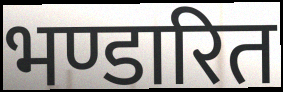
भण्डारित